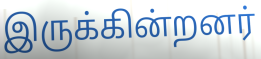
இருக்கின்றனர்